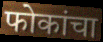
फोकांचा